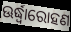
ଊର୍ଦ୍ଧ୍ୱାରୋହଣ